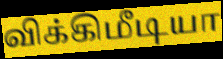
விக்கிமீடியா